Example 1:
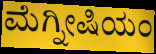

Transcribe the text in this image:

ಮೆಗ್ನೀಷಿಯಂ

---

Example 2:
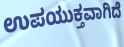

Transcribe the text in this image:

ಉಪಯುಕ್ತವಾಗಿದೆ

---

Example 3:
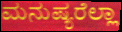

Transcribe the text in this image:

ಮನುಷ್ಯರೆಲ್ಲಾ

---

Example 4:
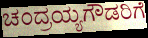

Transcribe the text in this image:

ಚಂದ್ರಯ್ಯಗೌಡರಿಗೆ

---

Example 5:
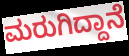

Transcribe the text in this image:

ಮರುಗಿದ್ದಾನೆ